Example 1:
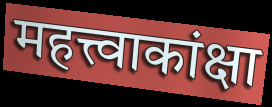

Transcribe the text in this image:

महत्त्वाकांक्षा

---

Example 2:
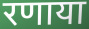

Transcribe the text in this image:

रणाया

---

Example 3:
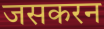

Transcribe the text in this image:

जसकरन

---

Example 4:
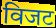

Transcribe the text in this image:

विजट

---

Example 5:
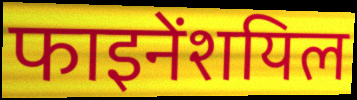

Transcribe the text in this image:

फाइनेंशयिल